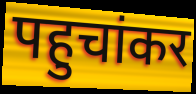
पहुचांकर